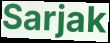
Sarjak